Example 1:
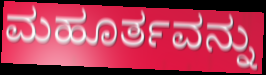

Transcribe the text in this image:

ಮಹೂರ್ತವನ್ನು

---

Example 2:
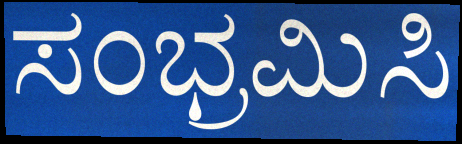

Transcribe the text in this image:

ಸಂಭ್ರಮಿಸಿ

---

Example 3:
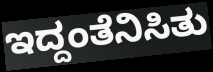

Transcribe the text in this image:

ಇದ್ದಂತೆನಿಸಿತು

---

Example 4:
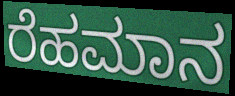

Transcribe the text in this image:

ರೆಹಮಾನ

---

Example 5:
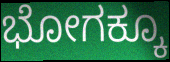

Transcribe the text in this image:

ಭೋಗಕ್ಕೂ